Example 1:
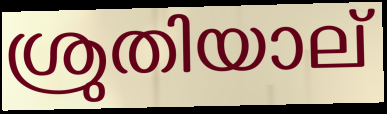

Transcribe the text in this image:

ശ്രുതിയാല്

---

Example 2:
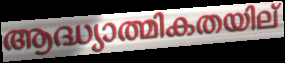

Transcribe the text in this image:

ആദ്ധ്യാത്മികതയില്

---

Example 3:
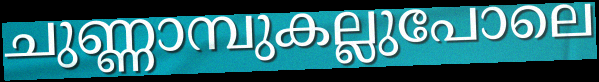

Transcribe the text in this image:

ചുണ്ണാമ്പുകല്ലുപോലെ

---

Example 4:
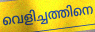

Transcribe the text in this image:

വെളിച്ചത്തിനെ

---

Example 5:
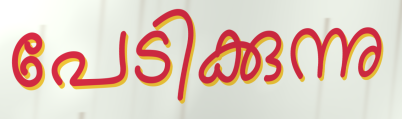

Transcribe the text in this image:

പേടിക്കുന്നു